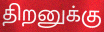
திறனுக்கு